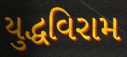
યુદ્ધવિરામ